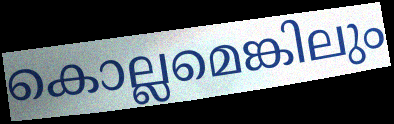
കൊല്ലമെങ്കിലും